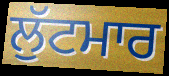
ਲੁੱਟਮਾਰ